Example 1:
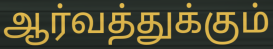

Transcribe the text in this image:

ஆர்வத்துக்கும்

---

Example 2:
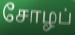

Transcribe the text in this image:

சோழப்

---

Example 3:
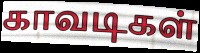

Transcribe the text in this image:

காவடிகள்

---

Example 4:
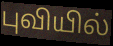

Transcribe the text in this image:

புவியில்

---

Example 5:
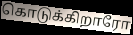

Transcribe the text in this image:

கொடுக்கிறாரோ